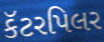
કૅટરપિલર